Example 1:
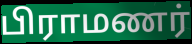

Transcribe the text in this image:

பிராமணர்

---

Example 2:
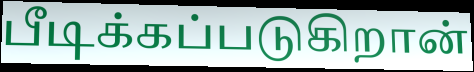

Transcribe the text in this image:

பீடிக்கப்படுகிறான்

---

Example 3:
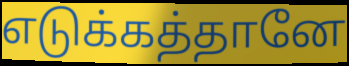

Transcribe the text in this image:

எடுக்கத்தானே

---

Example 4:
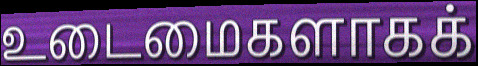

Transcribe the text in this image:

உடைமைகளாகக்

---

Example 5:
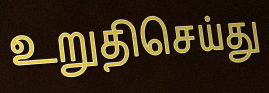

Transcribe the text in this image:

உறுதிசெய்து